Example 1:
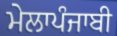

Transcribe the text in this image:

ਮੇਲਾਪੰਜਾਬੀ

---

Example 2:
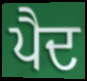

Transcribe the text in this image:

ਪੈਦ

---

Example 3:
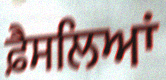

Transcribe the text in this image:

ਫ਼ੈਸਲਿਆਂ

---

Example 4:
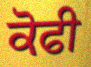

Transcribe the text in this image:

ਕੋਫੀ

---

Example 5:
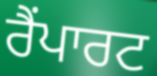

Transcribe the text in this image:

ਰੈਂਪਾਰਟ